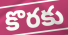
కొరకు